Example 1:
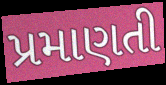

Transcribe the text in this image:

પ્રમાણતી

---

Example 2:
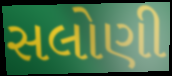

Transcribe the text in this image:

સલોણી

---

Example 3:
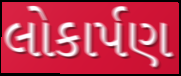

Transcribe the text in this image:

લોકાર્પણ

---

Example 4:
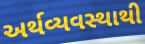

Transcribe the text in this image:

અર્થવ્યવસ્થાથી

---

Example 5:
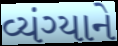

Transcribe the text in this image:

વ્યંગ્યાને